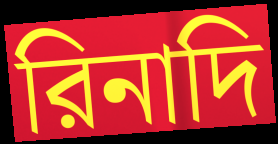
রিনাদি